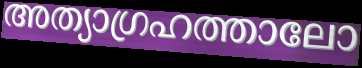
അത്യാഗ്രഹത്താലോ